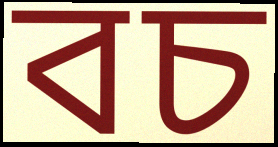
বচ